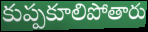
కుప్పకూలిపోతారు